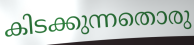
കിടക്കുന്നതൊരു